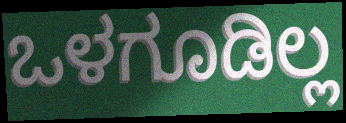
ಒಳಗೂಡಿಲ್ಲ